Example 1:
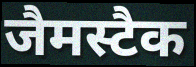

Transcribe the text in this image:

जैमस्टैक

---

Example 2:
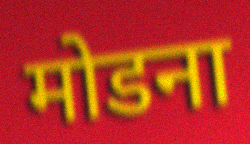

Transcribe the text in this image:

मोडना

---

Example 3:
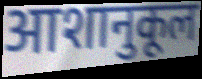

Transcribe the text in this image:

आशानुकूल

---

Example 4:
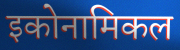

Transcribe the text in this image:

इकोनामिकल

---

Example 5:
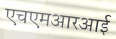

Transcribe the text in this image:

एचएमआरआई